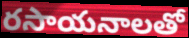
రసాయనాలతో